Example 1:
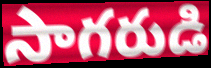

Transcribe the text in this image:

సాగరుడి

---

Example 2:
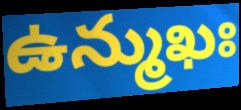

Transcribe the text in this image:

ఉన్ముఖః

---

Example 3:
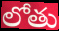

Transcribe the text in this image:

లోతు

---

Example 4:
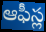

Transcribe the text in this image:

ఆఫీస్ల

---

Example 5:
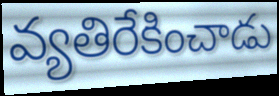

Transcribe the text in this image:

వ్యతిరేకించాడు